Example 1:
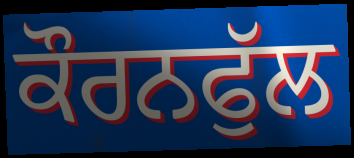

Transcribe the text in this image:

ਕੌਰਨਫੁੱਲ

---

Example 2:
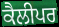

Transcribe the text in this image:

ਕੈਲੀਪਰ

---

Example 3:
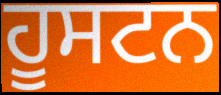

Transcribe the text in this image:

ਹੂਸਟਨ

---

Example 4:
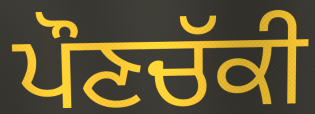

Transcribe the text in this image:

ਪੌਣਚੱਕੀ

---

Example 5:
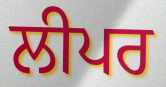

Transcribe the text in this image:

ਲੀਪਰ